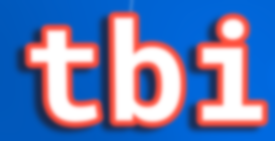
tbi